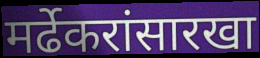
मर्ढेकरांसारखा